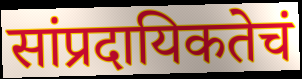
सांप्रदायिकतेचं